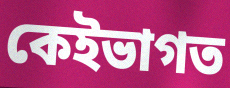
কেইভাগত